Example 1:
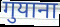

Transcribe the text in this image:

गुयाना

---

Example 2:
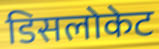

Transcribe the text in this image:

डिसलोकेट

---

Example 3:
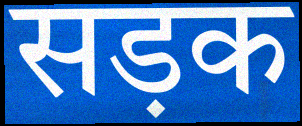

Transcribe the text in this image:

सड़क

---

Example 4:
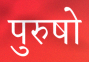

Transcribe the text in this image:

पुरुषो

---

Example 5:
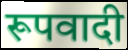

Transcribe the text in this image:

रूपवादी